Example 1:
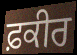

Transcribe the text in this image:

ਫ਼ਕੀਰ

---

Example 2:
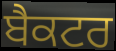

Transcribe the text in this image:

ਬੈਕਟਰ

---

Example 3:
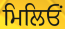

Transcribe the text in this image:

ਮਿਲਿਓਂ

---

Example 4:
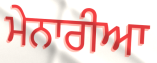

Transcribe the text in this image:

ਮੇਨਾਰੀਆ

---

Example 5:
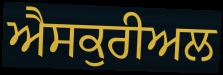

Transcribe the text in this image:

ਐਸਕੁਰੀਅਲ